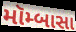
મૉમ્બાસા